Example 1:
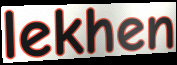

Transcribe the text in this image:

lekhen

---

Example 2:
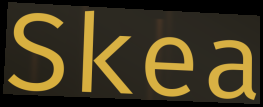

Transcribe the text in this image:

Skea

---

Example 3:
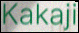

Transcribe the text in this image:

Kakaji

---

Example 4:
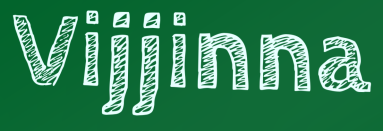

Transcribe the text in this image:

Vijjinna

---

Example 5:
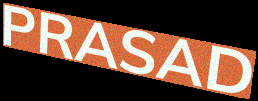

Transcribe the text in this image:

PRASAD